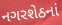
નગરશેઠનાં